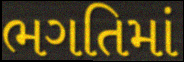
ભગતિમાં